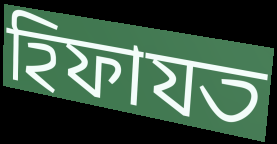
হিফাযত